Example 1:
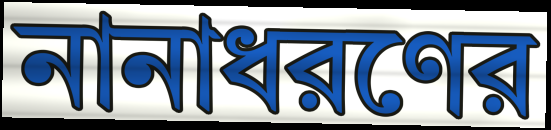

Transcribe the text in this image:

নানাধরণের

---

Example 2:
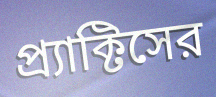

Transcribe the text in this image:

প্র্যাক্টিসের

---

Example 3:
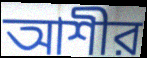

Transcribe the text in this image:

আশীর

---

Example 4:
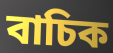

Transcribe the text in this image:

বাচিক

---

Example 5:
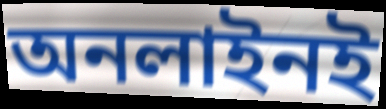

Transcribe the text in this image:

অনলাইনই